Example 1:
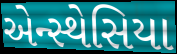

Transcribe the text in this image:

એન્સ્થેસિયા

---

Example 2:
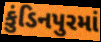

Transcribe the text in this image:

કુંડિનપુરમાં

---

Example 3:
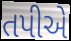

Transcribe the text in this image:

તપીએ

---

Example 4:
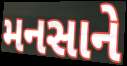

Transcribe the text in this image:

મનસાને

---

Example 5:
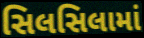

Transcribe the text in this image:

સિલસિલામાં